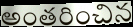
అంతరించిన